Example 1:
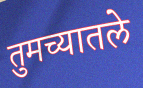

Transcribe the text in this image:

तुमच्यातले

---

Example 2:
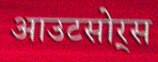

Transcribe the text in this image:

आउटसोर्स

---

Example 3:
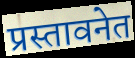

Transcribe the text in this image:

प्रस्तावनेत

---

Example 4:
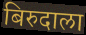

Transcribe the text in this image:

बिरुदाला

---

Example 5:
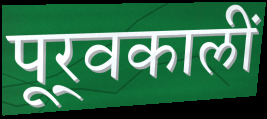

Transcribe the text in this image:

पूर्वकालीं